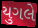
યુગલે